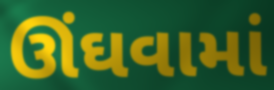
ઊંઘવામાં